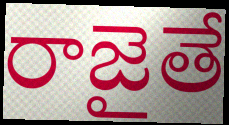
రాజైతే